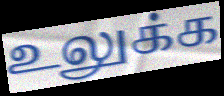
உலுக்க